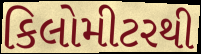
કિલોમીટરથી